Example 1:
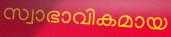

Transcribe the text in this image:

സ്വാഭാവികമായ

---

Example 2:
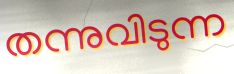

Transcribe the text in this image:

തന്നുവിടുന്ന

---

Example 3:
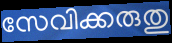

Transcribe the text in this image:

സേവിക്കരുതു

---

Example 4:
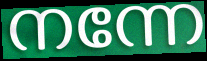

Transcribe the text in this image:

നന്നേ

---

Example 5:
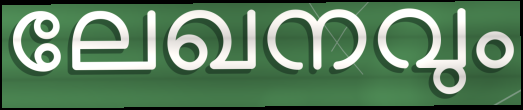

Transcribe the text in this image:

ലേഖനവും